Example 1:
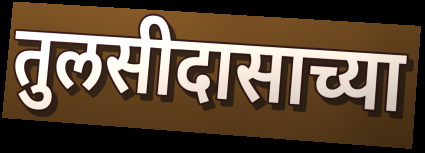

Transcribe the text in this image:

तुलसीदासाच्या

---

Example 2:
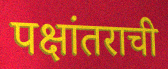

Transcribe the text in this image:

पक्षांतराची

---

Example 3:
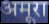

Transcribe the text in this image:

अमूरा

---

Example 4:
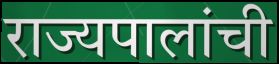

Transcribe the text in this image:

राज्यपालांची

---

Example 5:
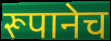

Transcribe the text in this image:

रूपानेच